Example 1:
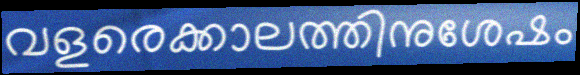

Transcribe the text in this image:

വളരെക്കാലത്തിനുശേഷം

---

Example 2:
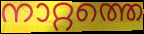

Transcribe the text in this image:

നാറ്റത്തെ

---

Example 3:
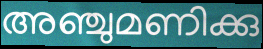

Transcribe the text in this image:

അഞ്ചുമണിക്കു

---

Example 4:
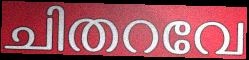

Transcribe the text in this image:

ചിതറവേ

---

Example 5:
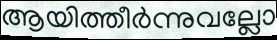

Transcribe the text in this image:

ആയിത്തീർന്നുവല്ലോ